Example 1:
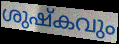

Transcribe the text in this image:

ശുഷ്കവും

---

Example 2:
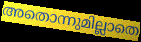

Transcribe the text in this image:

അതൊന്നുമില്ലാതെ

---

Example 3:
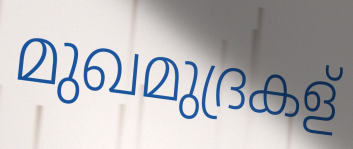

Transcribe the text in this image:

മുഖമുദ്രകള്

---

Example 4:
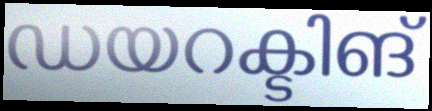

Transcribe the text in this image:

ഡയറക്ടിങ്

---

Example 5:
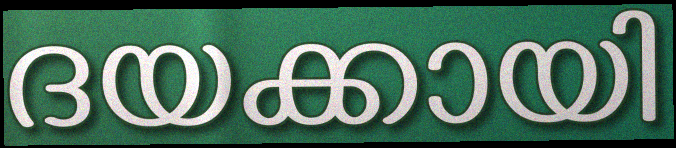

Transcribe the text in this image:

ദയക്കായി